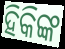
ହିକିଙ୍କ